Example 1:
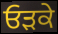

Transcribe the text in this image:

ਓੜਕੇ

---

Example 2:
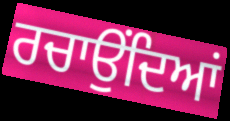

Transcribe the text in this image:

ਰਚਾਉਂਦਿਆਂ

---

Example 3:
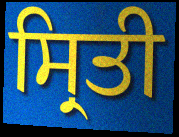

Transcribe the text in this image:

ਸ੍ਰਿਤੀ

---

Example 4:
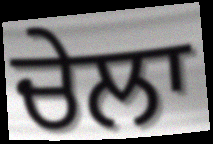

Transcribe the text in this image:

ਚੇਲਾ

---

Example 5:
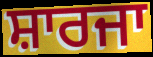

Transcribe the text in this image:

ਸ਼ਾਰਜਾ